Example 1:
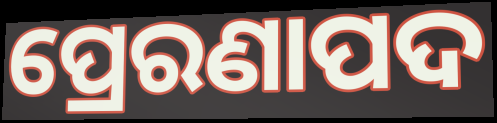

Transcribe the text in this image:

ପ୍ରେରଣାପଦ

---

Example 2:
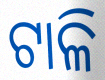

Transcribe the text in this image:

ଟାଳି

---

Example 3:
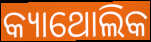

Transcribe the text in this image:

କ୍ୟାଥୋଲିକ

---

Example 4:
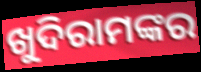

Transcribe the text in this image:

ଖୁଦିରାମଙ୍କର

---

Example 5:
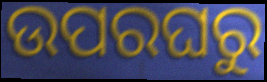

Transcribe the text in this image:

ଉପରଘରୁ